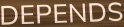
DEPENDS